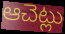
ఆచెట్లు